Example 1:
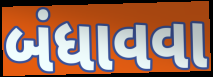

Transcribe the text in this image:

બંધાવવા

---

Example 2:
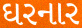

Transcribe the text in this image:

ઘરનાર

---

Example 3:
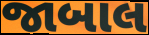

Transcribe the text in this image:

જાબાલ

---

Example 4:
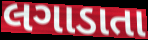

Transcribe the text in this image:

લગાડાતા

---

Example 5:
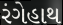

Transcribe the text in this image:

રંગેહાથ